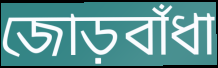
জোড়বাঁধা